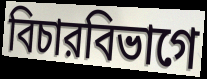
বিচারবিভাগে